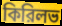
কিরিলভ